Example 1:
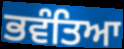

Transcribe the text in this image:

ਭਵੰਤਿਆ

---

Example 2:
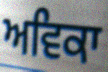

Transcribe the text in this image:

ਅਵਿਕਾ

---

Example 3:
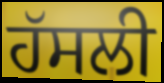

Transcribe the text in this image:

ਹੱਸਲੀ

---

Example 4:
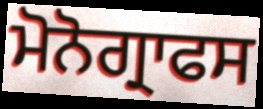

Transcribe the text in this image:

ਮੋਨੋਗ੍ਰਾਫਸ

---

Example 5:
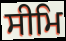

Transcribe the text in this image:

ਸੀਮਿ